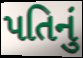
પતિનું